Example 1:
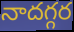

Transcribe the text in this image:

నాదగ్గర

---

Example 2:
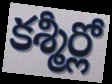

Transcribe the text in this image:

కశ్మీర్లో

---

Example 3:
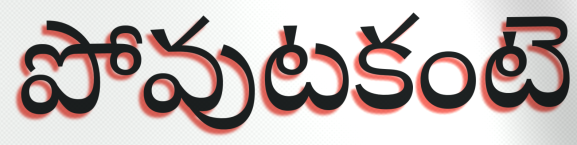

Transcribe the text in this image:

పోవుటకంటె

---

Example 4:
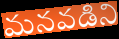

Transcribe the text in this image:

మనవడిని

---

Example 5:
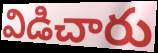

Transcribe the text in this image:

విడిచారు